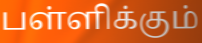
பள்ளிக்கும்